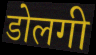
डोलगी